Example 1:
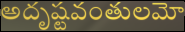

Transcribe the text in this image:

అదృష్టవంతులమో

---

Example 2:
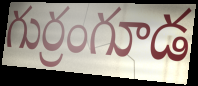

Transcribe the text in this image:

గుర్రంగూడ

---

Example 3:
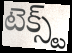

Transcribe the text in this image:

టెక్స్ట్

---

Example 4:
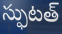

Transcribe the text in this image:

స్ఫుటత్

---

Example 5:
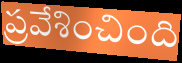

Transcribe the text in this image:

ప్రవేశించింది